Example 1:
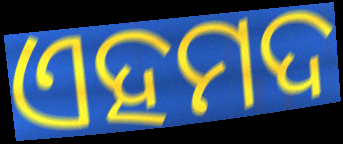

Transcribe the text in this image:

ଏହମଦ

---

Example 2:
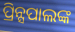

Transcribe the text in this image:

ପ୍ରିନ୍ସପାଲଙ୍କ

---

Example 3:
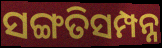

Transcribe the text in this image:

ସଙ୍ଗତିସମ୍ପନ୍ନ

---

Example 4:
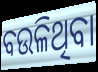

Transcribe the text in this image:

ବଉଳିଥିବା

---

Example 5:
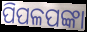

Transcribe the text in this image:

ପିପଳପଙ୍କା